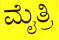
ಮೈತ್ರಿ